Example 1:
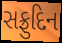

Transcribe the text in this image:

સફ્રુદિન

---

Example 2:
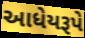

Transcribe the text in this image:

આધેયરૂપે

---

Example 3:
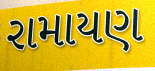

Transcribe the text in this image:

રામાયણ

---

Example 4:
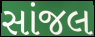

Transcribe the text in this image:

સાંજલ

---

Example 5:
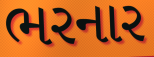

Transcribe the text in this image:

ભરનાર